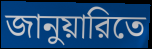
জানুয়ারিতে